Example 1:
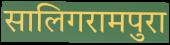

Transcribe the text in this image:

सालिगरामपुरा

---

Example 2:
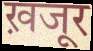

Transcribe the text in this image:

ख़जूर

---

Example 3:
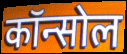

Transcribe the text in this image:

कॉन्सोल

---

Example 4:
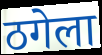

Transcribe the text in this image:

ठगेला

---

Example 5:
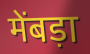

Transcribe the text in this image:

मेंबड़ा